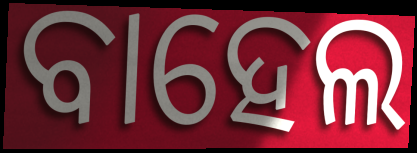
ବାହେଲ